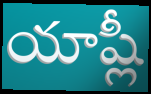
యాష్లీ